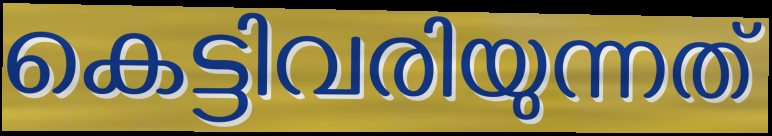
കെട്ടിവരിയുന്നത്